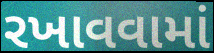
રખાવવામાં